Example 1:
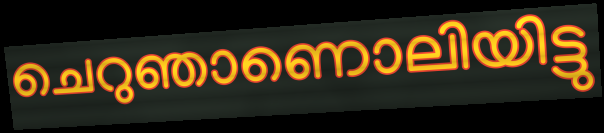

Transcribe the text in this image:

ചെറുഞാണൊലിയിട്ടു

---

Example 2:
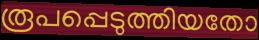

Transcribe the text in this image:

രൂപപ്പെടുത്തിയതോ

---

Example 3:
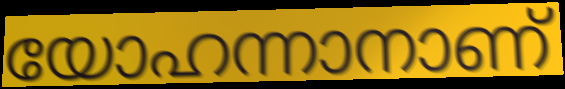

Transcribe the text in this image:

യോഹന്നാനാണ്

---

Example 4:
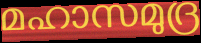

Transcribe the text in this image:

മഹാസമുദ്ര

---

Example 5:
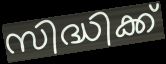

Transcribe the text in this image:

സിദ്ധിക്ക്